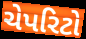
ચેપરિટો